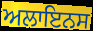
ਅਲਾਇਨਸ